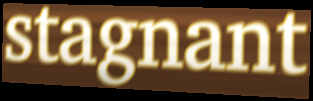
stagnant